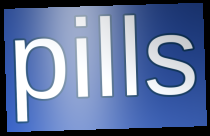
pills